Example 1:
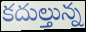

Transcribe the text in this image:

కదుల్తున్న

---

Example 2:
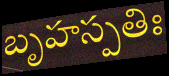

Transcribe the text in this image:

బృహస్పతిః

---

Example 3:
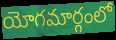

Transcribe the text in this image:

యోగమార్గంలో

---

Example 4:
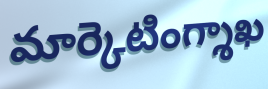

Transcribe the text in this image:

మార్కెటింగ్శాఖ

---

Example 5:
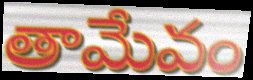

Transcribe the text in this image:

తామేవం